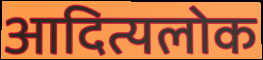
आदित्यलोक